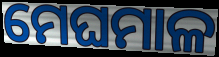
ମେଘମାଳ